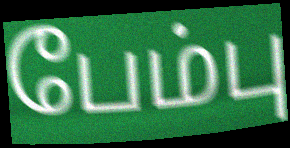
பேம்பு